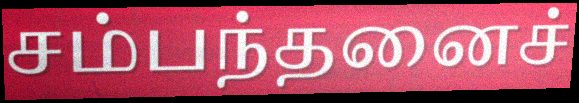
சம்பந்தனைச்